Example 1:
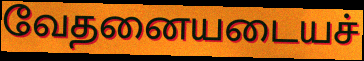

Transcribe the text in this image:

வேதனையடையச்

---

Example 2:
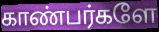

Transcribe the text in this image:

காண்பர்களே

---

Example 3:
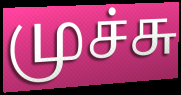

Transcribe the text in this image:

முச்சு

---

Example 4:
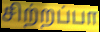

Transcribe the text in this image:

சிற்றப்பா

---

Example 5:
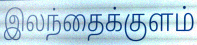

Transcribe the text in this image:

இலந்தைக்குளம்